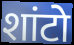
शांटो